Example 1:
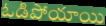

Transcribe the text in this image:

ఓడిపోయాయి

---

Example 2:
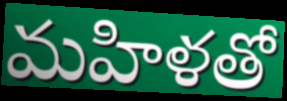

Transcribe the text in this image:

మహిళతో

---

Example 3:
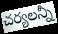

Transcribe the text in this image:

చర్యలన్నీ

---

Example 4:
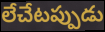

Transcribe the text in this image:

లేచేటప్పుడు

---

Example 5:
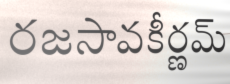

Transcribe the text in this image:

రజసావకీర్ణమ్